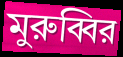
মুরুব্বির